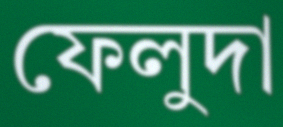
ফেলুদা